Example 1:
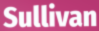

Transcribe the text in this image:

Sullivan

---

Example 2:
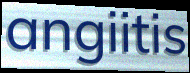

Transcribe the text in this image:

angiitis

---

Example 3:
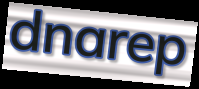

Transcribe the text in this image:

dnarep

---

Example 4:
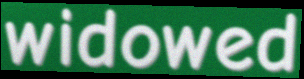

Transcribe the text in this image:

widowed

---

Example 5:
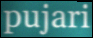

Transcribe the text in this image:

pujari